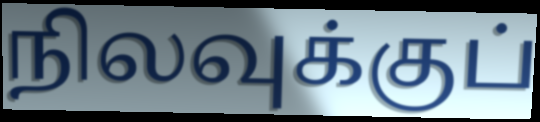
நிலவுக்குப்